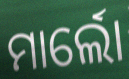
ମାର୍ଲୋ